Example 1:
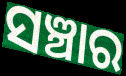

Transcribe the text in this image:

ସଞ୍ଚାର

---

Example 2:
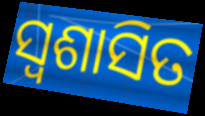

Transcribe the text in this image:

ସ୍ୱଶାସିତ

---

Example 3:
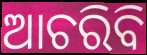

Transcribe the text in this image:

ଆଚରିବି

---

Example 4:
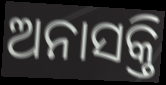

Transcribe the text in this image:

ଅନାସକ୍ତି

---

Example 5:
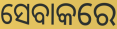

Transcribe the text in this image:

ସେବାକରେ